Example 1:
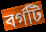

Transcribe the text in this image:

বর্গটি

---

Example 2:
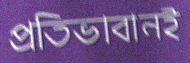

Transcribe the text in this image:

প্রতিভাবানই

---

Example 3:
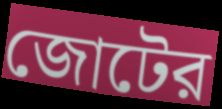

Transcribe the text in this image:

জোটের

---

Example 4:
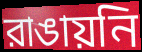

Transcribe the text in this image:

রাঙায়নি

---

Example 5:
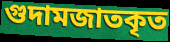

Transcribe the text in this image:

গুদামজাতকৃত